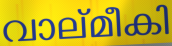
വാല്മീകി